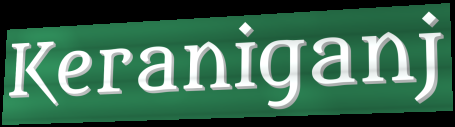
Keraniganj